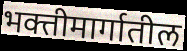
भक्तीमार्गातील